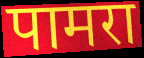
पामरा